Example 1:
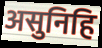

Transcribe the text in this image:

असुनिहि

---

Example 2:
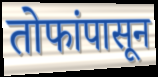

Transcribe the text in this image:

तोफांपासून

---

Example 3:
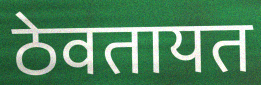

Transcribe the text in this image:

ठेवतायत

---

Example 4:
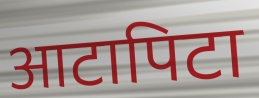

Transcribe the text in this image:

आटापिटा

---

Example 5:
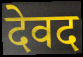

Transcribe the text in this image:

देवद